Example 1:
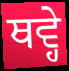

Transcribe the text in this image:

ਥਵ੍ਹੇ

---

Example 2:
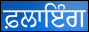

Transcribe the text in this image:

ਫ਼ਲਾਇੰਗ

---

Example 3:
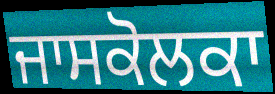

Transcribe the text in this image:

ਜਾਸਕੋਲਕਾ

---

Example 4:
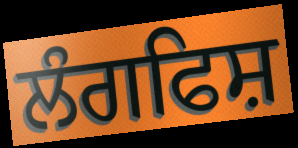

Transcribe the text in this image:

ਲੰਗਫਿਸ਼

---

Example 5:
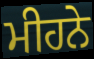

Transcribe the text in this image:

ਮੀਹਨੇ